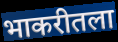
भाकरीतला